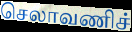
செலாவணிச்